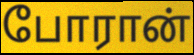
போரான்